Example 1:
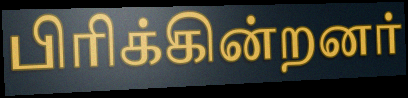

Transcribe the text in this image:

பிரிக்கின்றனர்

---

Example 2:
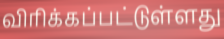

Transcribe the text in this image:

விரிக்கப்பட்டுள்ளது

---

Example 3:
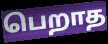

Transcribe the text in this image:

பெறாத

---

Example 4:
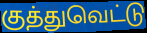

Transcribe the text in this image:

குத்துவெட்டு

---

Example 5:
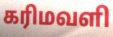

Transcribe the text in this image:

கரிமவளி